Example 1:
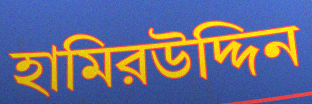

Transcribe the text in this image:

হামিরউদ্দিন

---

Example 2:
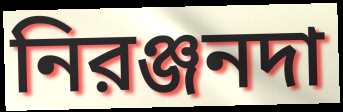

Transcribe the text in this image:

নিরঞ্জনদা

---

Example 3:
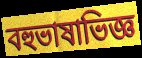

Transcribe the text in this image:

বহুভাষাভিজ্ঞ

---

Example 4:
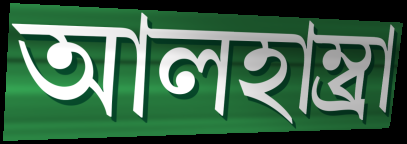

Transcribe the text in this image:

আলহাম্ব্রা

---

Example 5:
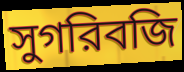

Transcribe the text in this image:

সুগরিবজি